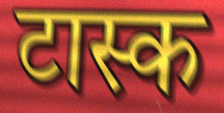
टास्क